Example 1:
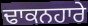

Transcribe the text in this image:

ਢਾਕਨਹਾਰੇ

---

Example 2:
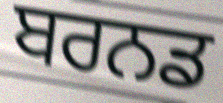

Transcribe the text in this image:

ਬਰਨਡ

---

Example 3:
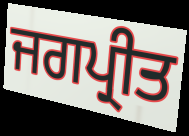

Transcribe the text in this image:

ਜਗਪ੍ਰੀਤ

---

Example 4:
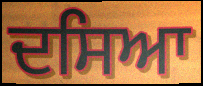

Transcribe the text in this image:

ਦਸਿਆ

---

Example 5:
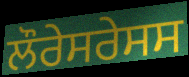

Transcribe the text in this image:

ਲੌਰੇਸਰੇਸਸ